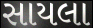
સાયલા